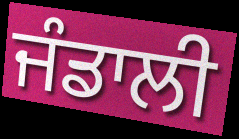
ਜੰਡਾਲੀ